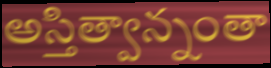
అస్తిత్వాన్నంతా